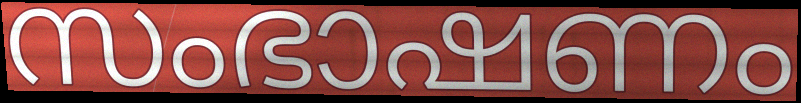
സംഭാഷണം